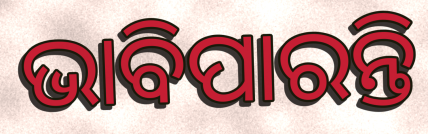
ଭାବିପାରନ୍ତି